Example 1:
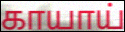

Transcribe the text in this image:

காயாய்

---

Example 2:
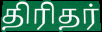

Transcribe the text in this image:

திரிதர்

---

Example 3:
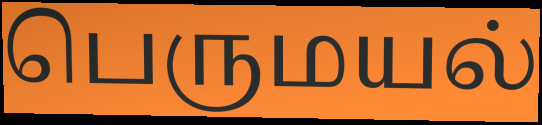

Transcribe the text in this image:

பெருமயல்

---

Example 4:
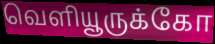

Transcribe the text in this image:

வெளியூருக்கோ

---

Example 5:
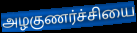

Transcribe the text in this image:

அழகுணர்ச்சியை